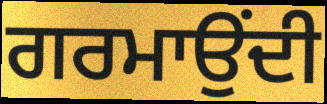
ਗਰਮਾਉਂਦੀ